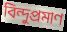
বিন্দুপ্রমাণ